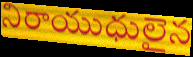
నిరాయుధులైన